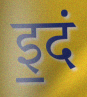
इ॒दं